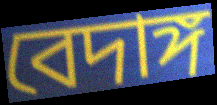
বেদাঙ্গ